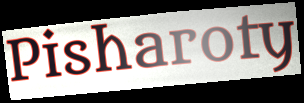
Pisharoty